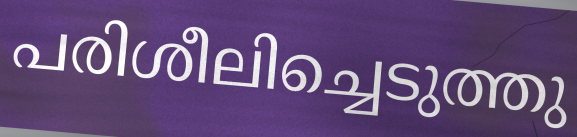
പരിശീലിച്ചെടുത്തു